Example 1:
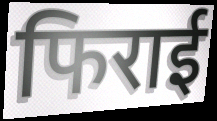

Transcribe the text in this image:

फिराई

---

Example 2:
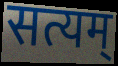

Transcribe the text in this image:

सत्यम्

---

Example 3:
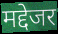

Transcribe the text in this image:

मद्देजर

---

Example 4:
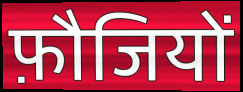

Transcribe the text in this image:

फ़ौजियों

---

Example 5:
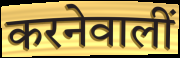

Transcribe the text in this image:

करनेवालीं